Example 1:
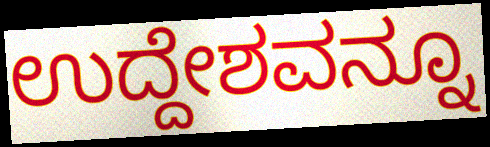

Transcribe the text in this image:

ಉದ್ದೇಶವನ್ನೂ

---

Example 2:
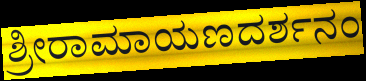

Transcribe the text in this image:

ಶ್ರೀರಾಮಾಯಣದರ್ಶನಂ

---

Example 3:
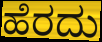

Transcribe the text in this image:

ಹೆರದು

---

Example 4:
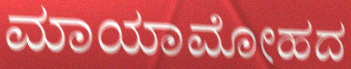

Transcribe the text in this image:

ಮಾಯಾಮೋಹದ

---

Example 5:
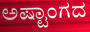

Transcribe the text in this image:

ಅಷ್ಟಾಂಗದ